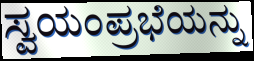
ಸ್ವಯಂಪ್ರಭೆಯನ್ನು